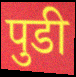
पुडी